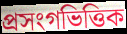
প্ৰসংগভিত্তিক